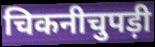
चिकनीचुपड़ी